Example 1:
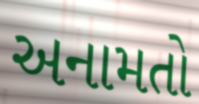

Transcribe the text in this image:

અનામતો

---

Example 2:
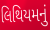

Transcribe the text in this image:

લિથિયમનું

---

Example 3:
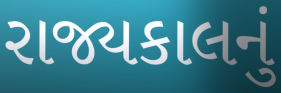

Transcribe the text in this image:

રાજ્યકાલનું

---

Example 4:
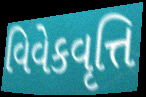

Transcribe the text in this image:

વિવેકવૃત્તિ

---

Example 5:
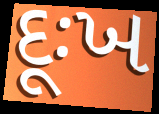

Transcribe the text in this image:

દૂઃખ